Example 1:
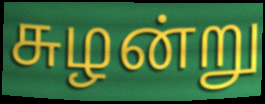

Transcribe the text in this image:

சுழன்று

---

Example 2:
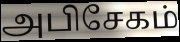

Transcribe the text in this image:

அபிசேகம்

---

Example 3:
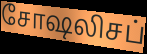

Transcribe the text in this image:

சோஷலிசப்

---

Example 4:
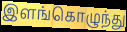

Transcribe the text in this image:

இளங்கொழுந்து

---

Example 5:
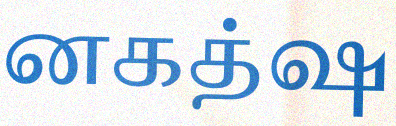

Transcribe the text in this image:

னகத்ஷ